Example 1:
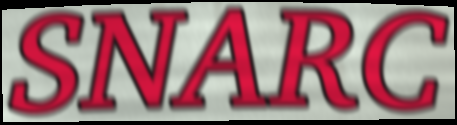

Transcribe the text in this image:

SNARC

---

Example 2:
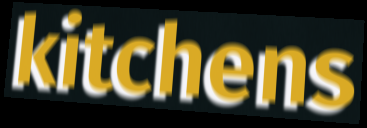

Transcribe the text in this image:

kitchens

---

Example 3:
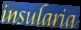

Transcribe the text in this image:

insularia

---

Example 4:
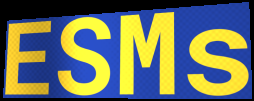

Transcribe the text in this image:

ESMs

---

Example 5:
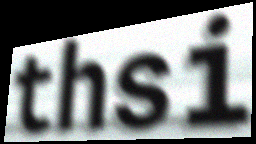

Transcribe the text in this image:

thsi